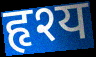
हृश्य